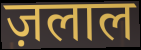
ज़लाल